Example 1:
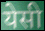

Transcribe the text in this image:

येसी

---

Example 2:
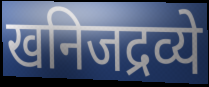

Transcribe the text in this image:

खनिजद्रव्ये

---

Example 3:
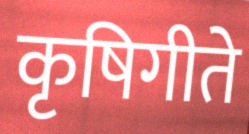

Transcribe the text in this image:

कृषिगीते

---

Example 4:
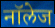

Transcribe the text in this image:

नॉलेज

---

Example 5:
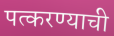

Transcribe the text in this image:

पत्करण्याची